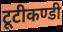
टूटीकण्डी